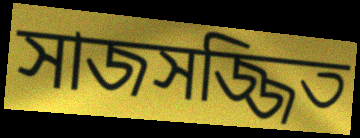
সাজসজ্জিত